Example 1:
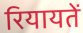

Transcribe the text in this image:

रियायतें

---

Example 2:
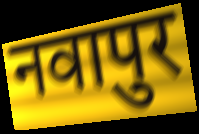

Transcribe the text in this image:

नवापुर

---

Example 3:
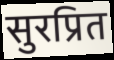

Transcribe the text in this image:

सुरप्रित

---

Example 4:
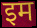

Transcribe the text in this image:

इम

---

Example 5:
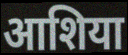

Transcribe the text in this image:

आशिया